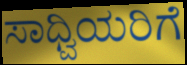
ಸಾಧ್ವಿಯರಿಗೆ